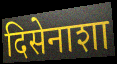
दिसेनाशा